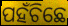
ପହଁଚିଛେ